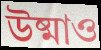
উষ্মাও